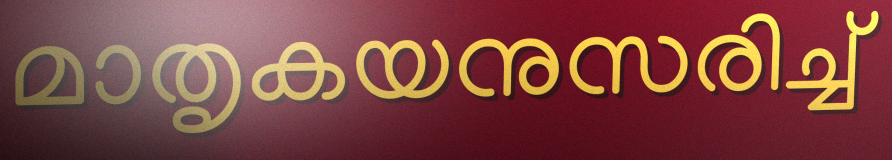
മാതൃകയനുസരിച്ച്